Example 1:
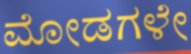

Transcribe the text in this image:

ಮೋಡಗಳೇ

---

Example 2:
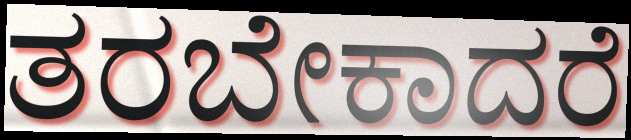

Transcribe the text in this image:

ತರಬೇಕಾದರೆ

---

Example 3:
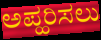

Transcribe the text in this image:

ಅಪ್ಹರಿಸಲು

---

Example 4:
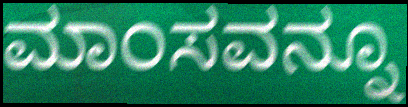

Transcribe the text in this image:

ಮಾಂಸವನ್ನೂ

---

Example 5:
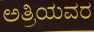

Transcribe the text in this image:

ಅತ್ರಿಯವರ